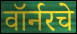
वॉर्नरचे